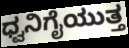
ಧ್ವನಿಗೈಯುತ್ತ